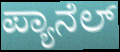
ಪ್ಯಾನೆಲ್